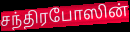
சந்திரபோஸின்